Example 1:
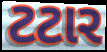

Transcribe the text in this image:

ટટાર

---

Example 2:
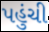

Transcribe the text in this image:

પહુંચી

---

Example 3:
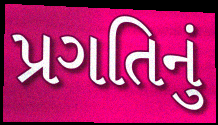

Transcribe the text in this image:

પ્રગતિનું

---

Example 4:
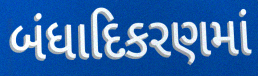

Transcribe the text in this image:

બંધાદિકરણમાં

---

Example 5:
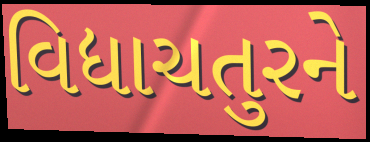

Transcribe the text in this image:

વિદ્યાચતુરને